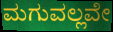
ಮಗುವಲ್ಲವೇ